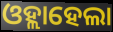
ଓହ୍ଲାହେଲା